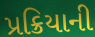
પ્રક્રિયાની